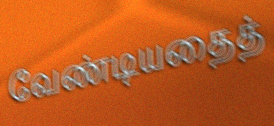
வேண்டியதைத்